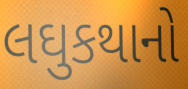
લઘુકથાનો